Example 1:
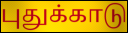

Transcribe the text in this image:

புதுக்காடு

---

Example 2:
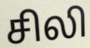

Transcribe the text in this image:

சிலி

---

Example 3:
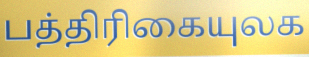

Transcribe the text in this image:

பத்திரிகையுலக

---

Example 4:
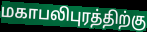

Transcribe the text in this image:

மகாபலிபுரத்திற்கு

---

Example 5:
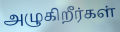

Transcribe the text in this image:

அழுகிறீர்கள்